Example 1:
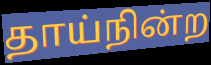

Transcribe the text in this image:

தாய்நின்ற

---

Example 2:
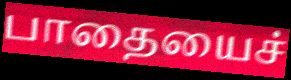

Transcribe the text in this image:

பாதையைச்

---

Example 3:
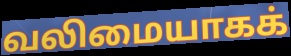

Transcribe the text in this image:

வலிமையாகக்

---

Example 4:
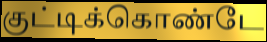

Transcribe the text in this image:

குட்டிக்கொண்டே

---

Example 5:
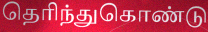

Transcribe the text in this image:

தெரிந்துகொண்டு